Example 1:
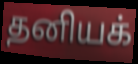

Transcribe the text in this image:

தனியக்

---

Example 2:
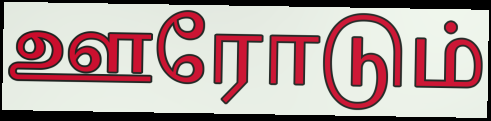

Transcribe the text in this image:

ஊரோடும்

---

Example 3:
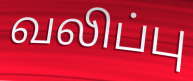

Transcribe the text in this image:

வலிப்பு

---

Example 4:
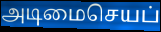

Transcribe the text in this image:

அடிமைசெயப்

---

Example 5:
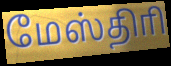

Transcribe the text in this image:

மேஸ்திரி